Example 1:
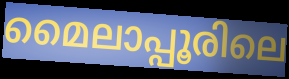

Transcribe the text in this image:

മൈലാപ്പൂരിലെ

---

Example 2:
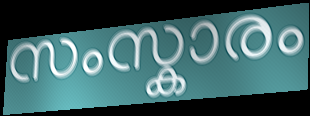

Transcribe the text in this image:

സംസ്കാരം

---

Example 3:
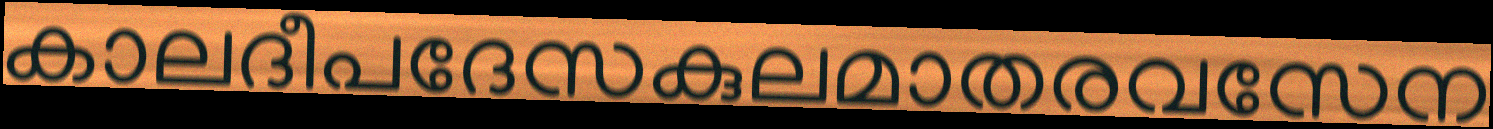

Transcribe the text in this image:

കാലദീപദേസകുലമാതരവസേന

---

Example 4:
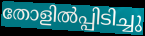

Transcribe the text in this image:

തോളിൽപ്പിടിച്ചു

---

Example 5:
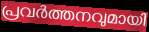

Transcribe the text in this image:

പ്രവർത്തനവുമായി